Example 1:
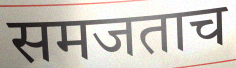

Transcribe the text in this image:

समजताच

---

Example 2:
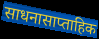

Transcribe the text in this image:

साधनासाप्ताहिक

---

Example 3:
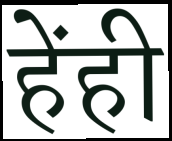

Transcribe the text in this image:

हेंही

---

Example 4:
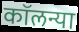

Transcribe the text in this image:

कॉलन्या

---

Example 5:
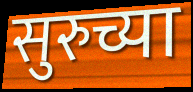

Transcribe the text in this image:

सुरुच्या